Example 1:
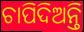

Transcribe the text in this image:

ଚାପିଦିଅନ୍ତି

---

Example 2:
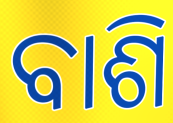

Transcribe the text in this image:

ବାଶି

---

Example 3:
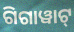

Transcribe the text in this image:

ଗିଗାୱାଟ୍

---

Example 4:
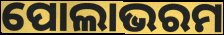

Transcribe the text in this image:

ପୋଲାଭରମ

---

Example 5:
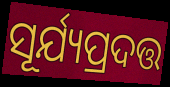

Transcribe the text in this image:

ସୂର୍ଯ୍ୟପ୍ରଦତ୍ତ